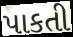
પાકતી